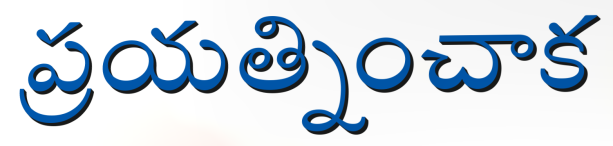
ప్రయత్నించాక